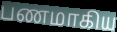
பணமாகிய